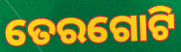
ତେରଗୋଟି